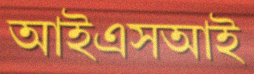
আইএসআই